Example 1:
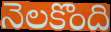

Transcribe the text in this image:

నెలకొంది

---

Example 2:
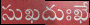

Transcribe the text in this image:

సుఖదుఃఖే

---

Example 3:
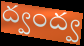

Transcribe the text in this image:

ద్వంద్వ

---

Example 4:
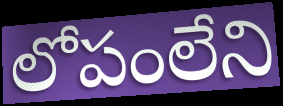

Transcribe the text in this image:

లోపంలేని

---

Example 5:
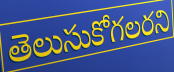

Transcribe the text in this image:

తెలుసుకోగలరని